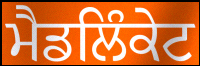
ਮੈਡਲਿੰਕੇਟ